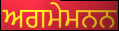
ਅਗਮੇਮਨਨ